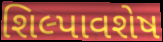
શિલ્પાવશેષ